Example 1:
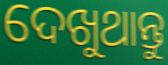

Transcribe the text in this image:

ଦେଖୁଥାନ୍ତୁ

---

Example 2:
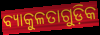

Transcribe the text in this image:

ବ୍ୟାକୁଳତାଗୁଡ଼ିକ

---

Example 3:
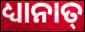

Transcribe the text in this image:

ଧ୍ୟାନାତ୍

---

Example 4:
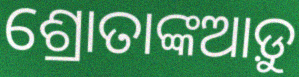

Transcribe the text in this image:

ଶ୍ରୋତାଙ୍କଆଡ଼ୁ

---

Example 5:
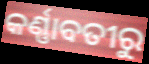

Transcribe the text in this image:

କର୍ଣ୍ଣାବତୀରୁ